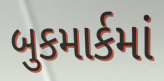
બુકમાર્કમાં